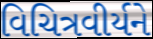
વિચિત્રવીર્યને